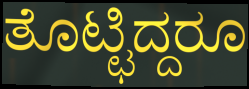
ತೊಟ್ಟಿದ್ದರೂ